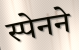
स्पेनने